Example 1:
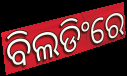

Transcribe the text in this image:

ବିଲଡିଂରେ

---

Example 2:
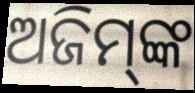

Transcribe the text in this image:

ଅଜିମ୍‌ଙ୍କ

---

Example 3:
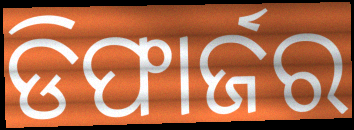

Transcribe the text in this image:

ଡିଫାର୍ଜର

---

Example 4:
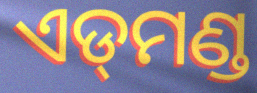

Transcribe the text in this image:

ଏଡ୍‌ମଣ୍ଡ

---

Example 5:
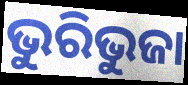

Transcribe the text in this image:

ଭୁରିଭୁଜା